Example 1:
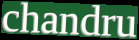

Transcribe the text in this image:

chandru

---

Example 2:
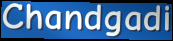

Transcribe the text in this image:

Chandgadi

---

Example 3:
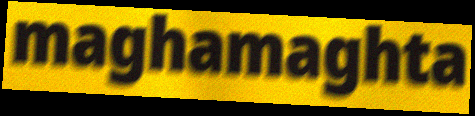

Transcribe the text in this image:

maghamaghta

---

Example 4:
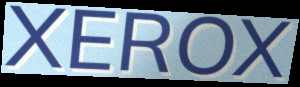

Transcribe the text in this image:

XEROX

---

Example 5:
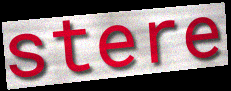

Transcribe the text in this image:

stere